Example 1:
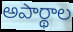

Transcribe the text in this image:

అపార్థాల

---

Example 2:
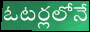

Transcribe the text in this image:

ఓటర్లలోనే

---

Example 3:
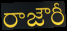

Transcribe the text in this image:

రాజౌరీ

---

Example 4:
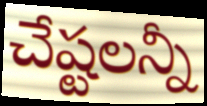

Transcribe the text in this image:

చేష్టలన్నీ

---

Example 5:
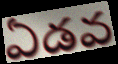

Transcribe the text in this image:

ఏడవ